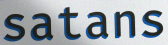
satans